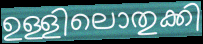
ഉള്ളിലൊതുക്കി